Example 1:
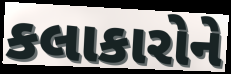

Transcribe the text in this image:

કલાકારોને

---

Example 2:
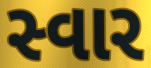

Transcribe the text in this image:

સ્વાર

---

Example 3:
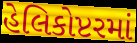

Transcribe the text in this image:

હેલિકોપ્ટરમાં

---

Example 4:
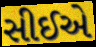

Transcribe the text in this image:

સીઈએ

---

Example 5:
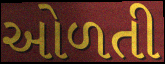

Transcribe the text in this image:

ઓળતી